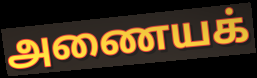
அணையக்